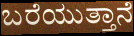
ಬರೆಯುತ್ತಾನೆ